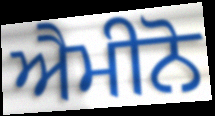
ਐਮੀਨੋ